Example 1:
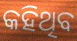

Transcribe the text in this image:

କହିଥିବ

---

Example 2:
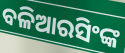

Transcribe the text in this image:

ବଳିଆରସିଂଙ୍କ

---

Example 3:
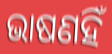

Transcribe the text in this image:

ଭାଷଣହିଁ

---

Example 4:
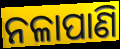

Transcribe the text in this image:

ନଳାପାଣି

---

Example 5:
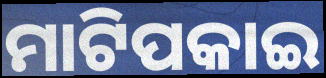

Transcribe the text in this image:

ମାଟିପକାଇ